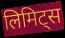
लिमिट्स